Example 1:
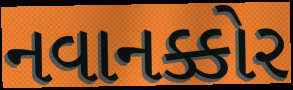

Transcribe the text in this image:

નવાનક્કોર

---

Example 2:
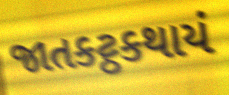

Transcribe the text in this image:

જાતકટ્ઠકથાયં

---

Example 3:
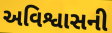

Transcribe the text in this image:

અવિશ્વાસની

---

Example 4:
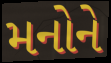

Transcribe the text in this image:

મનોને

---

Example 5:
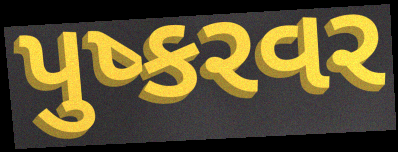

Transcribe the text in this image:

પુષ્કરવર